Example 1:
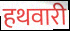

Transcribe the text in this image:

हथवारी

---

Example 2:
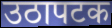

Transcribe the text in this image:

उठापटक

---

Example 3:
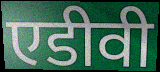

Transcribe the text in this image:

एडीवी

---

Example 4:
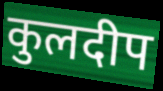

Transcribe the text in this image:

कुलदीप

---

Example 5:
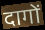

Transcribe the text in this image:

दागों